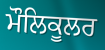
ਮੌਲਿਕੂਲਰ